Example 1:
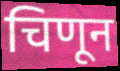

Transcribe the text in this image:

चिणून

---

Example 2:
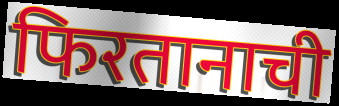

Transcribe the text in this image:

फिरतानाची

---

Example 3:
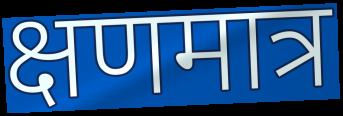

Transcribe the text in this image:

क्षणमात्र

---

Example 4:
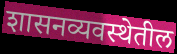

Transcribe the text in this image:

शासनव्यवस्थेतील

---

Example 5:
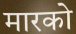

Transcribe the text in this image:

मारको